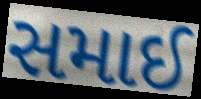
સમાઈ